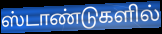
ஸ்டாண்டுகளில்